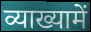
व्याख्यामें